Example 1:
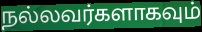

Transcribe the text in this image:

நல்லவர்களாகவும்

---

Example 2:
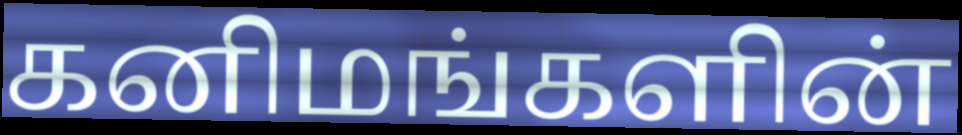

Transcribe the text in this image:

கனிமங்களின்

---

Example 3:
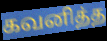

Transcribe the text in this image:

கவனித்த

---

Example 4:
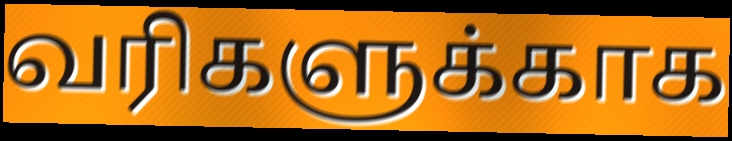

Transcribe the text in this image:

வரிகளுக்காக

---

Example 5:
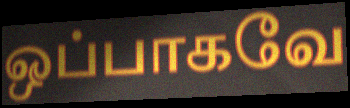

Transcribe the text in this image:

ஒப்பாகவே